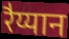
रैय्यान